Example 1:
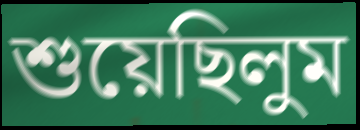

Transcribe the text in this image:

শুয়েছিলুম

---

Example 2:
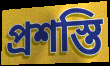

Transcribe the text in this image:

প্রশস্তি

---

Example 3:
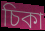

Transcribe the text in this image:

চিকা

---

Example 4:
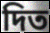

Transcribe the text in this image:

দিত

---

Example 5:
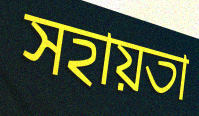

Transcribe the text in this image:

সহায়তা